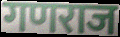
गणराज